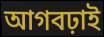
আগবঢ়াই